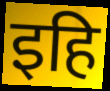
इहि